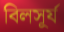
বিলসূর্য